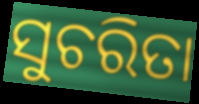
ସୁଚରିତା